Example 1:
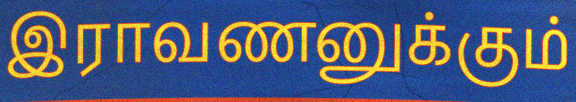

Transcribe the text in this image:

இராவணனுக்கும்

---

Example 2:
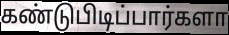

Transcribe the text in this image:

கண்டுபிடிப்பார்களா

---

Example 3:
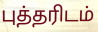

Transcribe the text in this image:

புத்தரிடம்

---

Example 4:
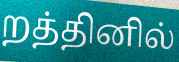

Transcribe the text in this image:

றத்தினில்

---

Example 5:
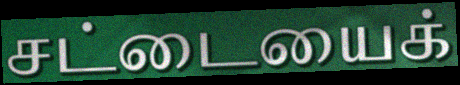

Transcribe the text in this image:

சட்டையைக்